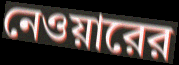
নেওয়ারের